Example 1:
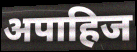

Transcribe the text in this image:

अपाहिज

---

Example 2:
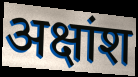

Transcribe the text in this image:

अक्षांश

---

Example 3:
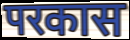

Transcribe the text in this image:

परकास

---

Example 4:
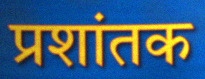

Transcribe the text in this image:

प्रशांतक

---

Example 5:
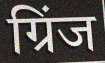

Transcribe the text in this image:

ग्रिंज